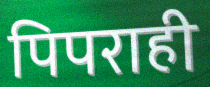
पिपराही